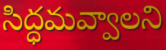
సిద్ధమవ్వాలని